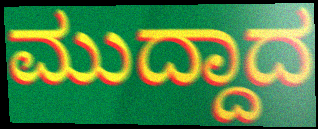
ಮುದ್ದಾದ